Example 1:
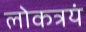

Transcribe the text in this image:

लोकत्रयं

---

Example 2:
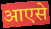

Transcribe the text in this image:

आएसे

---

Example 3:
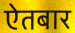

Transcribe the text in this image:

ऐतबार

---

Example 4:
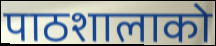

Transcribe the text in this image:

पाठशालाको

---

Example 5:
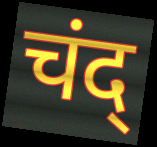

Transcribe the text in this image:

चंद्